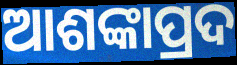
ଆଶଙ୍କାପ୍ରଦ